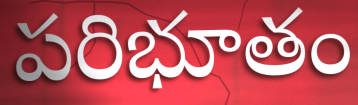
పరిభూతం